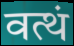
वत्थं